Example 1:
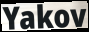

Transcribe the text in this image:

Yakov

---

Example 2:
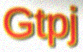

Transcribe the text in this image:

Gtpj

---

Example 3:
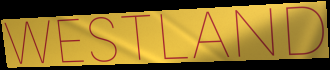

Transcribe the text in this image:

WESTLAND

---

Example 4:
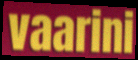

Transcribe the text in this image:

vaarini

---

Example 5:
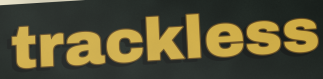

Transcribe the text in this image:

trackless